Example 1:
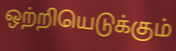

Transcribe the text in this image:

ஒற்றியெடுக்கும்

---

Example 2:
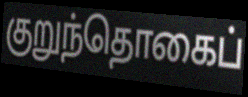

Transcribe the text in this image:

குறுந்தொகைப்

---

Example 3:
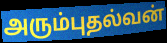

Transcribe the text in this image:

அரும்புதல்வன்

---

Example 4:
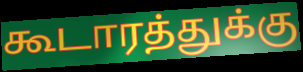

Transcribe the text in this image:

கூடாரத்துக்கு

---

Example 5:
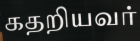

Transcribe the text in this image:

கதறியவர்